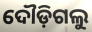
ଦୌଡ଼ିଗଲୁ